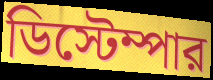
ডিস্টেম্পার